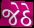
જેઠે